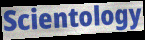
Scientology